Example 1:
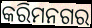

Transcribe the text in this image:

କରିମନଗର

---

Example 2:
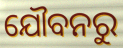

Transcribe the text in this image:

ଯୌବନରୁ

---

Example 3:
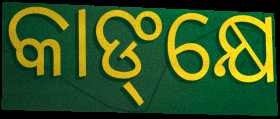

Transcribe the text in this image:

କାଙ୍‌କ୍ଷେ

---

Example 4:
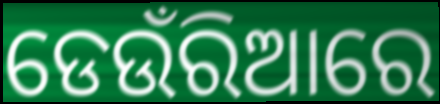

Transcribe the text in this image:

ଡେଉଁରିଆରେ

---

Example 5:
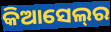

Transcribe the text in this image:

କିଆସେଲ୍‌ର